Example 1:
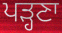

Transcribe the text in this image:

ਪੜ੍ਹਣਾ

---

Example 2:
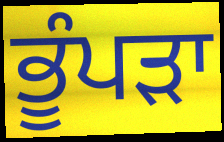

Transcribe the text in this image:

ਭੂੰਪੜਾ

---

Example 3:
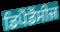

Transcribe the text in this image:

ਡਿਪੈਂਡੈਂਸੀਜ਼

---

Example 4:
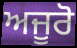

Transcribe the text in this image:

ਅਜੂਰੋ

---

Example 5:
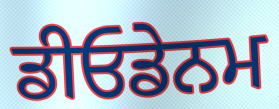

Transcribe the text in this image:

ਡੀਓਡੇਨਮ